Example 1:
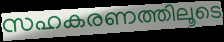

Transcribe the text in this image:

സഹകരണത്തിലൂടെ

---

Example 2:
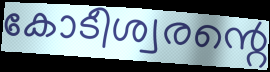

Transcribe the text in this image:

കോടീശ്വരന്റെ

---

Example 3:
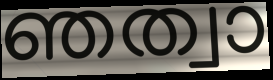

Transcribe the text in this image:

ഞത്വാ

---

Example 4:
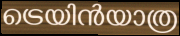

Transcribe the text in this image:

ട്രെയിൻയാത്ര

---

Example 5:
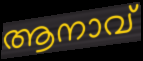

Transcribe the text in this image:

ആനാവ്